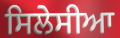
ਸਿਲੇਸੀਆ